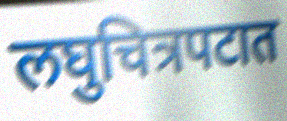
लघुचित्रपटात